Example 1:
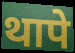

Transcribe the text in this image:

थापे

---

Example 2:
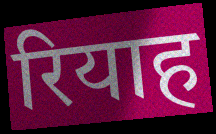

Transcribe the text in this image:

रियाह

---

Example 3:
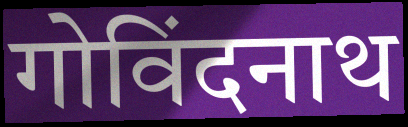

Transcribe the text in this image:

गोविंदनाथ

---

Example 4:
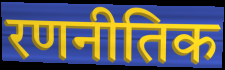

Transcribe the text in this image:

रणनीतिक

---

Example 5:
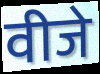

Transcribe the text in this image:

वीजे